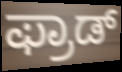
ಫ್ರಾಡ್